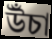
উঁচা